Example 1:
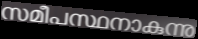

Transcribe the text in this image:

സമീപസ്ഥനാകുന്നു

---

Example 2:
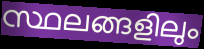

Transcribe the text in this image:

സ്ഥലങ്ങളിലും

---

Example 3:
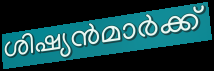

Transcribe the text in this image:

ശിഷ്യൻമാർക്ക്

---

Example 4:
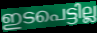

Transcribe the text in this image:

ഇടപെട്ടില്ല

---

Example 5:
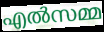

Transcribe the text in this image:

എൽസമ്മ